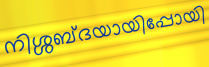
നിശ്ശബ്ദയായിപ്പോയി